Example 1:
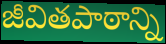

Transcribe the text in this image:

జీవితపాఠాన్ని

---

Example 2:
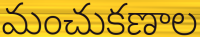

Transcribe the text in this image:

మంచుకణాల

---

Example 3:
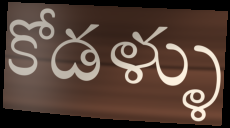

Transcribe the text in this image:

కోడళ్ళు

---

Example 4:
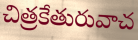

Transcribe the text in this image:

చిత్రకేతురువాచ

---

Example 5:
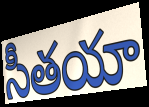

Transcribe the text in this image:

సీతయా